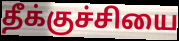
தீக்குச்சியை